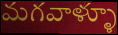
మగవాళ్ళూ